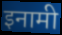
इनामी